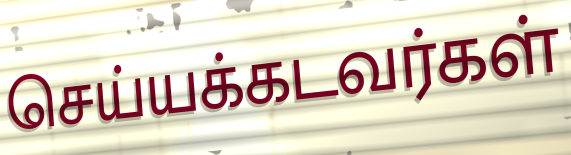
செய்யக்கடவர்கள்